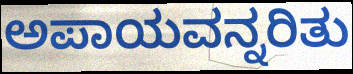
ಅಪಾಯವನ್ನರಿತು